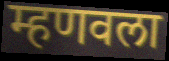
म्हणवला